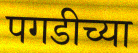
पगडीच्या